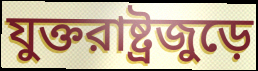
যুক্তরাষ্ট্রজুড়ে